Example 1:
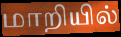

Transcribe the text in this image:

மாறியில்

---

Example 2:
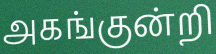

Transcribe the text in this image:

அகங்குன்றி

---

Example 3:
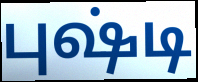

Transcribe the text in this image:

புஷ்டி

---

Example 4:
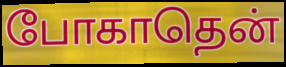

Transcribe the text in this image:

போகாதென்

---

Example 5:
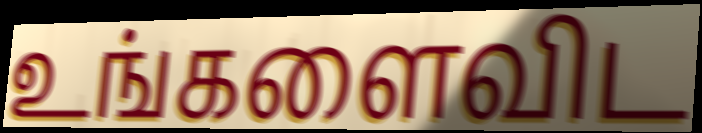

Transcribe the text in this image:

உங்களைவிட